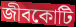
জীবকোটি